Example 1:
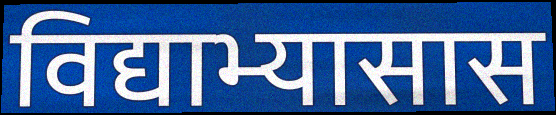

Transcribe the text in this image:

विद्याभ्यासास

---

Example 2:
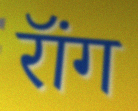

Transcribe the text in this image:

रॉंग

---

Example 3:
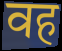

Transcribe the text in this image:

वह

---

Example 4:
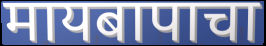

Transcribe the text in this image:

मायबापाचा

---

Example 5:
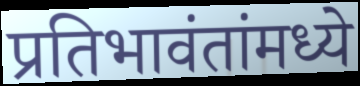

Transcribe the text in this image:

प्रतिभावंतांमध्ये